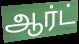
ஆர்ட்